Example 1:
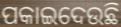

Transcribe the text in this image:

ପକାଇଦେଉଛି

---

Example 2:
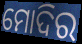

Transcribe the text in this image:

ମୋଦିର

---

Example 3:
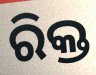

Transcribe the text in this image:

ରିକ୍ତ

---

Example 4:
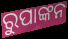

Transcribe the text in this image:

ରୁପାଙ୍କନ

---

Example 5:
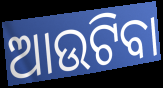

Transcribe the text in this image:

ଆଉଟିବା